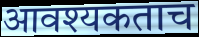
आवश्यकताच